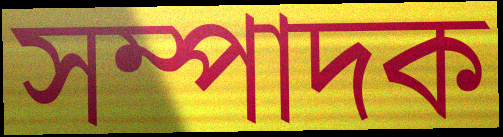
সম্পাদক